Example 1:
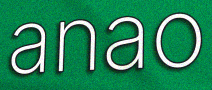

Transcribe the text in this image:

anao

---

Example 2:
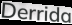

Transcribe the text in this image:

Derrida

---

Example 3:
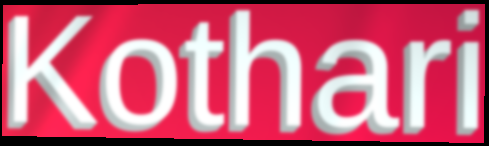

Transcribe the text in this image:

Kothari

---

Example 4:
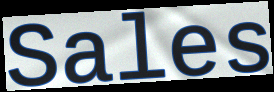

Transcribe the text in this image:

Sales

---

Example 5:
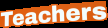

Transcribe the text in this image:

Teachers